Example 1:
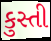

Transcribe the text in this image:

કુસ્તી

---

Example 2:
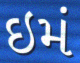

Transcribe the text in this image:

ઇમં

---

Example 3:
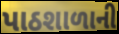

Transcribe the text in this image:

પાઠશાળાની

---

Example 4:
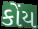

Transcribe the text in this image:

કોંય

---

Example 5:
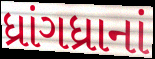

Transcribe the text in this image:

ધ્રાંગધ્રાનાં